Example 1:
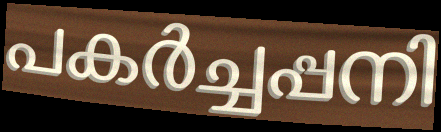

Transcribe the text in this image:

പകർച്ചപ്പനി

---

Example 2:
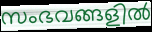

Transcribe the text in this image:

സംഭവങ്ങളിൽ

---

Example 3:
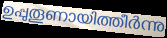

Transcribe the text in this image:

ഉപ്പുതൂണായിത്തീർന്നു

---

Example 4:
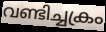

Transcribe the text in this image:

വണ്ടിച്ചക്രം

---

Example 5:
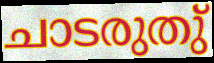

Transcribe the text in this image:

ചാടരുതു്